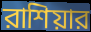
রাশিয়ার